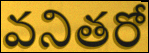
వనితరో